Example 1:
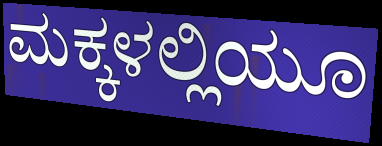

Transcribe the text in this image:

ಮಕ್ಕಳಲ್ಲಿಯೂ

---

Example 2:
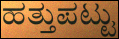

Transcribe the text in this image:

ಹತ್ತುಪಟ್ಟು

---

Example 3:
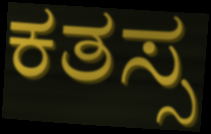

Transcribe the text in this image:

ಕತಸ್ಸ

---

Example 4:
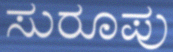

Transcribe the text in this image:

ಸುರೂಪು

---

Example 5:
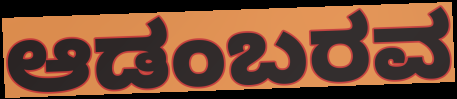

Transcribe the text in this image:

ಆಡಂಬರವ